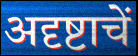
अदृष्टाचें